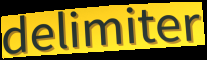
delimiter